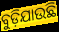
ବୁଡ଼ିଯାଉଛି